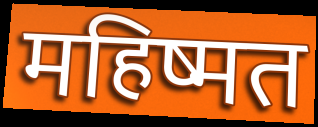
महिष्मत